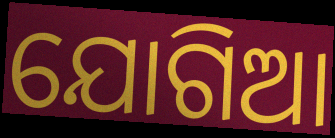
ଯୋଗିଆ